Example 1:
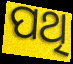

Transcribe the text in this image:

ପଥି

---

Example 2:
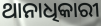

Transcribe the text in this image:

ଥାନାଧିକାରୀ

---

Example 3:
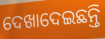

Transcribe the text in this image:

ଦେଖାଦେଇଛନ୍ତି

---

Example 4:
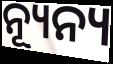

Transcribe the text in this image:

ନ୍ୟୂନ୍ୟ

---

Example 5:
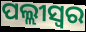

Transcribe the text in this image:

ପଲ୍ଲୀସ୍ଵର